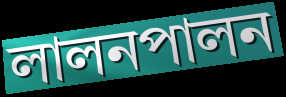
লালনপালন